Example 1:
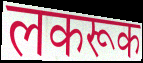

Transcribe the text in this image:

लकरूक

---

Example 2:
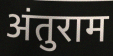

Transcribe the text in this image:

अंतुराम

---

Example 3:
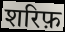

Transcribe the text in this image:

शरिफ़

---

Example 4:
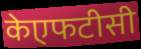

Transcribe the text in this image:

केएफटीसी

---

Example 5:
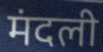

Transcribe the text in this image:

मंदली